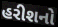
હરીશનો